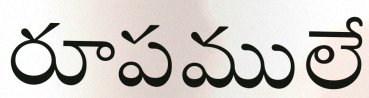
రూపములే